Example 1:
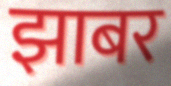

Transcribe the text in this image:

झाबर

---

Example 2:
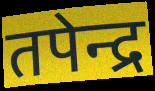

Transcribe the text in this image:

तपेन्द्र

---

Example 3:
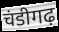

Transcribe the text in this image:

चंडीगढ़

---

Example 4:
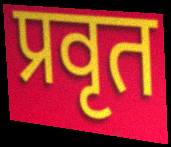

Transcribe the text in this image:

प्रवृत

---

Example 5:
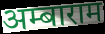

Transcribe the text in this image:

अम्बाराम